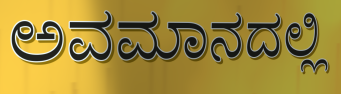
ಅವಮಾನದಲ್ಲಿ